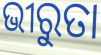
ଭୀରୁତା